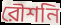
রৌশনি